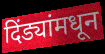
दिंड्यांमधून